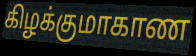
கிழக்குமாகாண